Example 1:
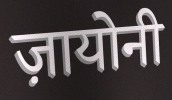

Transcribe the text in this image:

ज़ायोनी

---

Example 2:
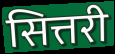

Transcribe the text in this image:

सित्तरी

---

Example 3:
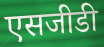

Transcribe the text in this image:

एसजीडी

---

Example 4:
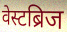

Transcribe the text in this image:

वेस्टब्रिज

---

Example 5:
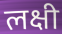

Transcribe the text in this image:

लक्षी